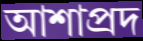
আশাপ্রদ